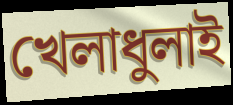
খেলাধুলাই